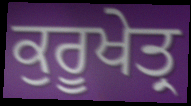
ਕੁਰੂਖੇਤ੍ਰ